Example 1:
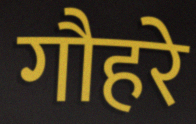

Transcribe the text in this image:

गौहरे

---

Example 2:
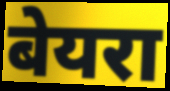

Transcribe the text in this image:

बेयरा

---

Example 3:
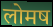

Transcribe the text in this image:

लोमष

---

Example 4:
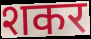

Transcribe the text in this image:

शकर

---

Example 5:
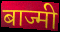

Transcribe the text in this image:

बाज्मी